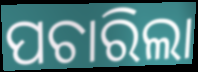
ପଚାରିଲା